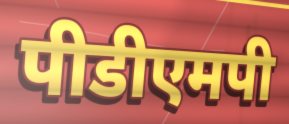
पीडीएमपी